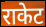
राकेट